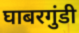
घाबरगुंडी